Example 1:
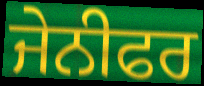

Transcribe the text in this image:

ਜੇਨੀਫਰ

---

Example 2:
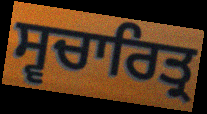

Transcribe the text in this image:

ਸ੍ਵਚਾਰਿਤ੍ਰ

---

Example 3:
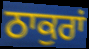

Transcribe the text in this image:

ਠਾਕੁਰਾਂ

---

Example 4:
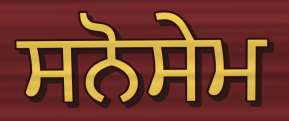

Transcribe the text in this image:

ਸਨੋਸੇਮ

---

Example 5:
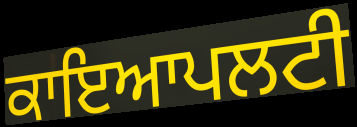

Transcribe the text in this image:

ਕਾਇਆਪਲਟੀ